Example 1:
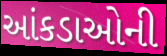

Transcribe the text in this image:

આંકડાઓની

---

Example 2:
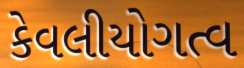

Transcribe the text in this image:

કેવલીયોગત્વ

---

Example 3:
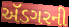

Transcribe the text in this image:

ઍડગરની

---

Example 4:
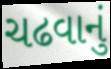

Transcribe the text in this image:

ચઢવાનું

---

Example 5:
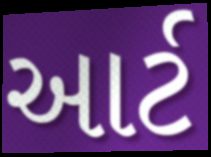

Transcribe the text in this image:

આર્ટ